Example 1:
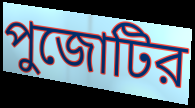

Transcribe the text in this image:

পুজোটির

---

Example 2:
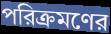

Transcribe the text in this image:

পরিক্রমণের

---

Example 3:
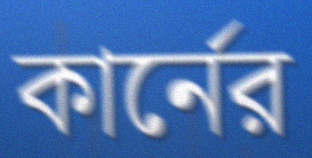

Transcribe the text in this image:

কার্নের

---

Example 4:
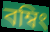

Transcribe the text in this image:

বম্বিং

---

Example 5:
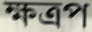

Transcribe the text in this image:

ক্ষত্রপ